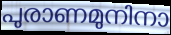
പുരാണമുനിനാ